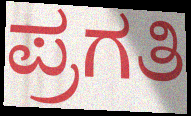
ಪ್ರಗತಿ